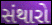
સંથારો